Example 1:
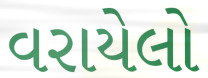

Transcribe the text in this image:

વરાયેલો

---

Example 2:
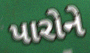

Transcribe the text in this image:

પારોને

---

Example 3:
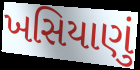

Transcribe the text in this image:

ખસિયાણું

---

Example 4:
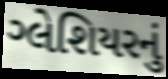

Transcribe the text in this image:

ગ્લેશિયરનું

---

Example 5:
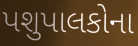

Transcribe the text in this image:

પશુપાલકોના